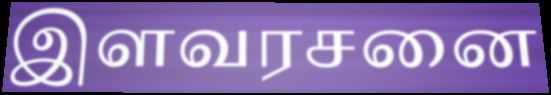
இளவரசனை